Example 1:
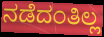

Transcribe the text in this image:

ನಡೆದಂತಿಲ್ಲ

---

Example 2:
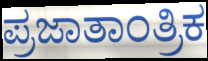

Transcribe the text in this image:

ಪ್ರಜಾತಾಂತ್ರಿಕ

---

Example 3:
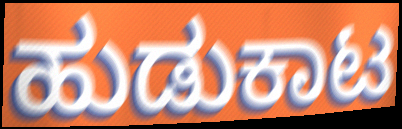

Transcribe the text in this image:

ಹುಡುಕಾಟ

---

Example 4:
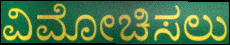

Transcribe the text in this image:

ವಿಮೋಚಿಸಲು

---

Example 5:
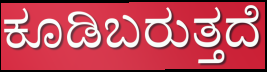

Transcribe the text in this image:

ಕೂಡಿಬರುತ್ತದೆ